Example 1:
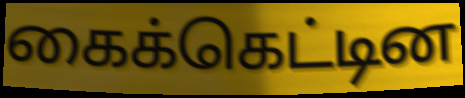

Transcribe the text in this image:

கைக்கெட்டின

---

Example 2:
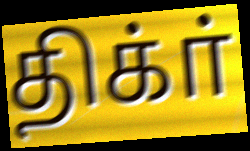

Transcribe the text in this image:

திக்ர்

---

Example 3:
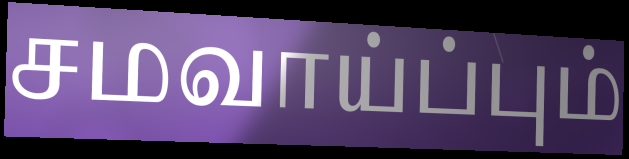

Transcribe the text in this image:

சமவாய்ப்பும்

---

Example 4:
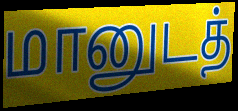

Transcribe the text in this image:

மானுடத்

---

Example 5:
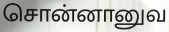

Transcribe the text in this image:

சொன்னானுவ